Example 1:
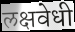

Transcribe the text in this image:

लक्षवेधी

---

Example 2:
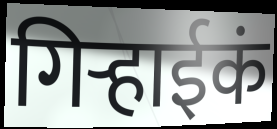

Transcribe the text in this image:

गिऱ्हाईकं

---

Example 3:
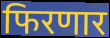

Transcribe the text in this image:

फिरणार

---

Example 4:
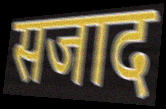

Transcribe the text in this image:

सजाद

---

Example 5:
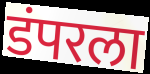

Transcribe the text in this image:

डंपरला